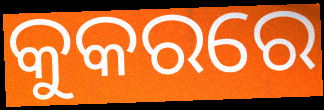
କୁକରରେ